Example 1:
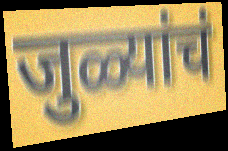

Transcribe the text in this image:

जुळ्यांचं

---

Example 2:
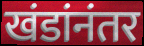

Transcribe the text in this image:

खंडांनंतर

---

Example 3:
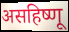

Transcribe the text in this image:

असहिष्णू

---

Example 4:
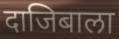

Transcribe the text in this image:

दाजिबाला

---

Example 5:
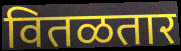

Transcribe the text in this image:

वितळतार